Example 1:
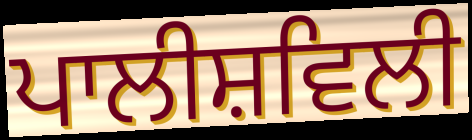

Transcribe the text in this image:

ਪਾਲੀਸ਼ਵਿਲੀ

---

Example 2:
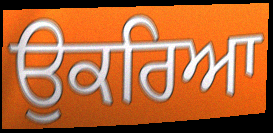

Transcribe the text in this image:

ਉਕਰਿਆ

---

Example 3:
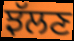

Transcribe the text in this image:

ਝੱਲਣ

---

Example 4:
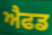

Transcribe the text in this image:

ਐਫਡ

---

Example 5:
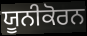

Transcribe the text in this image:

ਯੂਨੀਕੋਰਨ